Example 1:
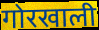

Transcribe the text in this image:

गोरखाली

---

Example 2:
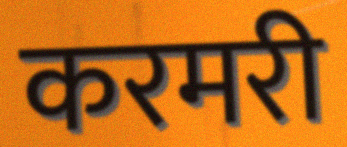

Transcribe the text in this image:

करमरी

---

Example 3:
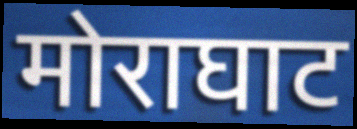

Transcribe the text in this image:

मोराघाट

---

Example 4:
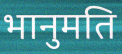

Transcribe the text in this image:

भानुमति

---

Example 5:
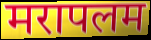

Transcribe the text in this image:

मरापलम